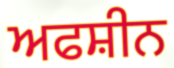
ਅਫਸ਼ੀਨ